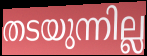
തടയുന്നില്ല